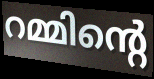
റമ്മിന്റെ